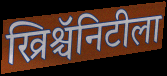
ख्रिश्चॅनिटीला